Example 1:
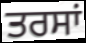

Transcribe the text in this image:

ਤਰਸਾਂ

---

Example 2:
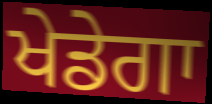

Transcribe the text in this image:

ਖੇਡੇਗਾ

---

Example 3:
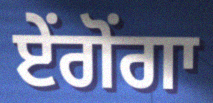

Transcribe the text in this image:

ਏਂਗੋਂਗਾ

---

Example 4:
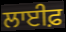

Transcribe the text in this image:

ਲਾਈਫ਼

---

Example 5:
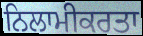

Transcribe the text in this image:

ਨਿਲਾਮੀਕਰਤਾ